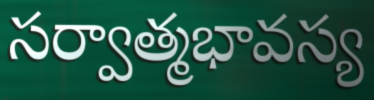
సర్వాత్మభావస్య